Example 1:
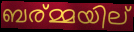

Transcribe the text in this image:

ബര്മ്മയില്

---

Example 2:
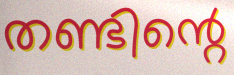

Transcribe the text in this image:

തണ്ടിന്റെ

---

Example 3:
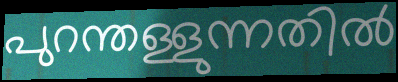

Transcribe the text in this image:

പുറന്തള്ളുന്നതിൽ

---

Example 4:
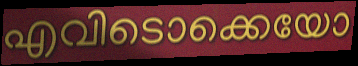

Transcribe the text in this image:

എവിടൊക്കെയോ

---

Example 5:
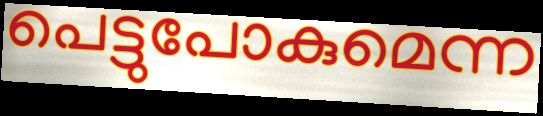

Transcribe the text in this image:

പെട്ടുപോകുമെന്ന